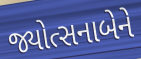
જ્યોત્સનાબેને